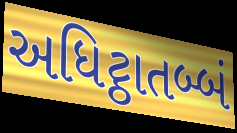
અધિટ્ઠાતબ્બં